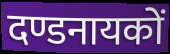
दण्डनायकों